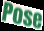
Pose